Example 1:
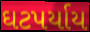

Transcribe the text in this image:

ઘટપર્યાય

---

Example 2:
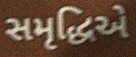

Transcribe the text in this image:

સમૃદ્ધિએ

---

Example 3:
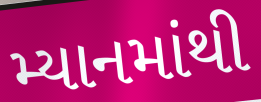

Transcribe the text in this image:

મ્યાનમાંથી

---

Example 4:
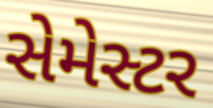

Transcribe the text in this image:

સેમેસ્ટર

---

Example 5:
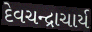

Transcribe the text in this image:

દેવચન્દ્રાચાર્ય